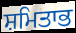
ਸ਼ਮਿਤਾਭ